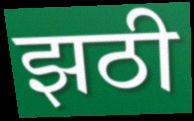
झठी